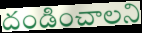
దండించాలని